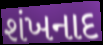
શંખનાદ